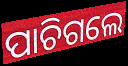
ପାଚିଗଲେ